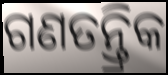
ଗଣତନ୍ତ୍ରିକ